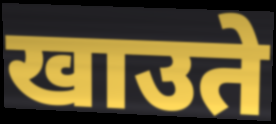
खाउते